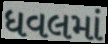
ધવલમાં